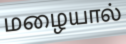
மழையால்